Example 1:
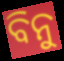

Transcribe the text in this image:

ବିନୁ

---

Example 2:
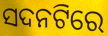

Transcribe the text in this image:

ସଦନଟିରେ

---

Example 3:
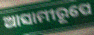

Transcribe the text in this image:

ଆସାମୀରୂପେ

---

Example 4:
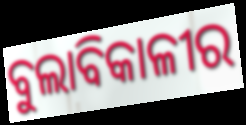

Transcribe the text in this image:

ବୁଲାବିକାଳୀର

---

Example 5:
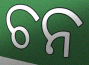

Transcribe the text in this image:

ଚନ